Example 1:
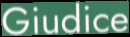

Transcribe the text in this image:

Giudice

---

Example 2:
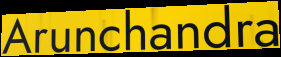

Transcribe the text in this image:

Arunchandra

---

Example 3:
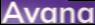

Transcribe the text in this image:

Avana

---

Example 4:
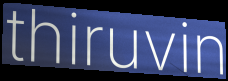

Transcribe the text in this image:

thiruvin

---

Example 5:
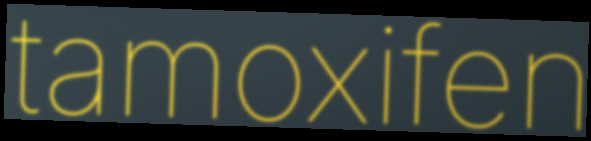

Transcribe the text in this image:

tamoxifen